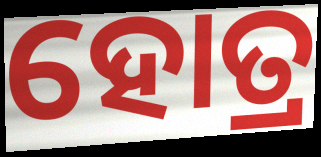
ହୋତ୍ର